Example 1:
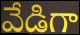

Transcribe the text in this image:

వేడిగా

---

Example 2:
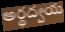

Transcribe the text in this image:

అర్థద్వయ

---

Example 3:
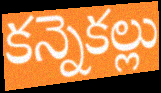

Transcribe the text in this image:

కన్నెకల్లు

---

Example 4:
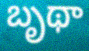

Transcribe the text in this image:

బృథా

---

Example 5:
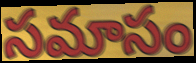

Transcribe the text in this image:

సమాసం